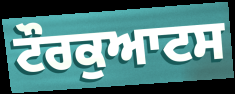
ਟੌਰਕੁਆਟਸ